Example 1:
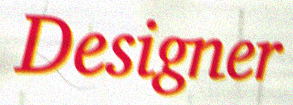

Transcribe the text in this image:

Designer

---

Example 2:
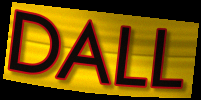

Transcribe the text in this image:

DALL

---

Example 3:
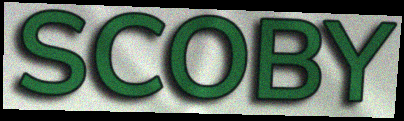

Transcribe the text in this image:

SCOBY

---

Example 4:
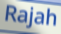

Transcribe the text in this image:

Rajah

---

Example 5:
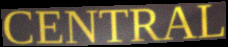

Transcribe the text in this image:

CENTRAL